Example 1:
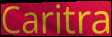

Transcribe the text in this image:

Caritra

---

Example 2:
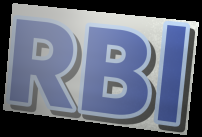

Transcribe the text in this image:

RBl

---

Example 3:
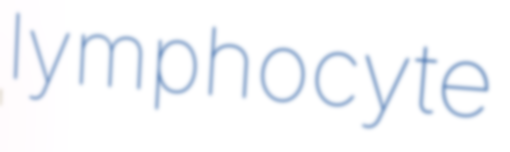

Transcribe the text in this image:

lymphocyte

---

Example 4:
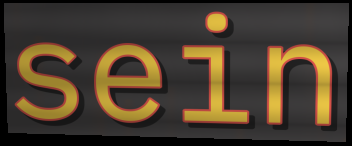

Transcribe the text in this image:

sein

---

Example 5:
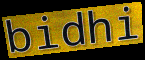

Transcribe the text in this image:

bidhi